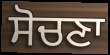
ਸੋਚਣਾ